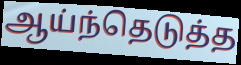
ஆய்ந்தெடுத்த